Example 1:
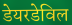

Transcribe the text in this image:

डेयरडेविल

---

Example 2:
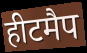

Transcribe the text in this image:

हीटमैप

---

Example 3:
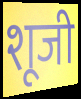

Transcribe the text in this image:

शूजी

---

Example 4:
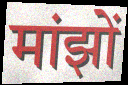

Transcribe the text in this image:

मांझों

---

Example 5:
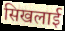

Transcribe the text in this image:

सिखलाई